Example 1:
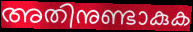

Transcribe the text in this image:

അതിനുണ്ടാകുക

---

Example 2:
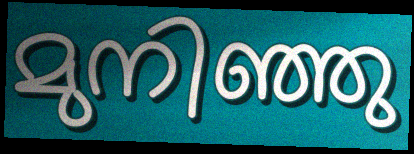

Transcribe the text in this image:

മുനിഞ്ഞു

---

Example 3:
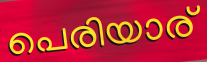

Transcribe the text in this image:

പെരിയാര്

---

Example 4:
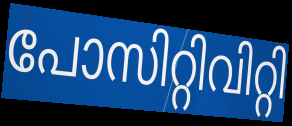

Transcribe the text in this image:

പോസിറ്റിവിറ്റി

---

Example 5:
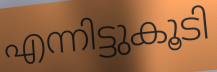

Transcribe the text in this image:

എന്നിട്ടുകൂടി